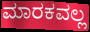
ಮಾರಕವಲ್ಲ